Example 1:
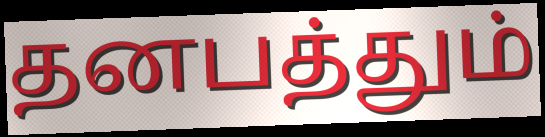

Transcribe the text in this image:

தனபத்தும்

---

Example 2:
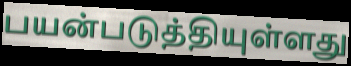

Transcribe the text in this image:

பயன்படுத்தியுள்ளது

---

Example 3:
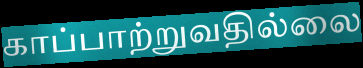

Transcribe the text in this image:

காப்பாற்றுவதில்லை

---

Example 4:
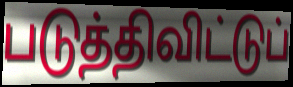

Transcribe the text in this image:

படுத்திவிட்டுப்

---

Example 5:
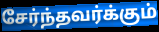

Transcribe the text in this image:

சேர்ந்தவர்க்கும்